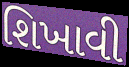
શિખાવી